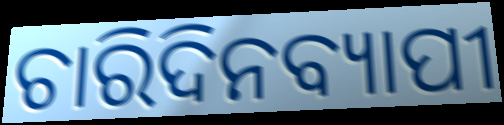
ଚାରିଦିନବ୍ୟାପୀ